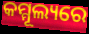
କମ୍ମୂଲ୍ୟରେ